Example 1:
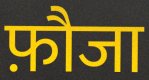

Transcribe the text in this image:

फ़ौजा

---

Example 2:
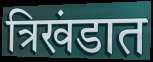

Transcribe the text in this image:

त्रिखंडात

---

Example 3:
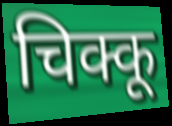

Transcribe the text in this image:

चिक्कू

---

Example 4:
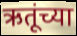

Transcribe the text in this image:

ऋतूंच्या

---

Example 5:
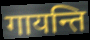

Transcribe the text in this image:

गायन्ति